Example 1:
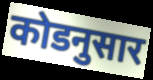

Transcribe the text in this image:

कोडनुसार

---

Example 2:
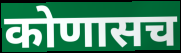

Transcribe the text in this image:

कोणासच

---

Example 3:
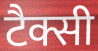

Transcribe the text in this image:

टैक्सी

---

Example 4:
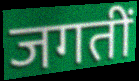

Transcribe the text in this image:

जगतीं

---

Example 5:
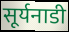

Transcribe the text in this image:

सूर्यनाडी